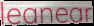
leanear